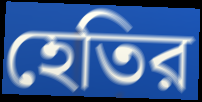
হেতির